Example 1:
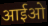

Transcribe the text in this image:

आईओ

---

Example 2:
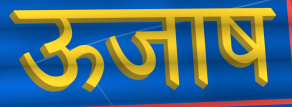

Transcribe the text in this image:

ऊजाष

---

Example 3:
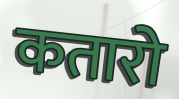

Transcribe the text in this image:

कतारो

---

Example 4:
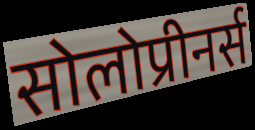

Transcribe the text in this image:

सोलोप्रीनर्स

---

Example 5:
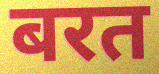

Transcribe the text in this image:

बरत